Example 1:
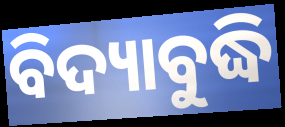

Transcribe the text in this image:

ବିଦ୍ୟାବୁଦ୍ଧି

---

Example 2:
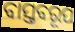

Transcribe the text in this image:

ବାସ୍ତବରୂପ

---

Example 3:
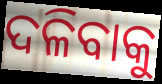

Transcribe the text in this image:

ଦଳିବାକୁ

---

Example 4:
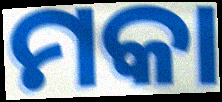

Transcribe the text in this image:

ମକା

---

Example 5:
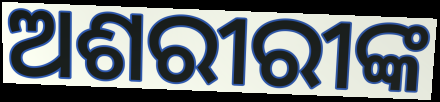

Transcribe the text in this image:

ଅଶରୀରୀଙ୍କ